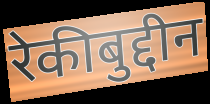
रेकीबुद्दीन